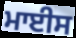
ਮਾਈਸ